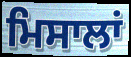
ਮਿਸਾਲਾਂ